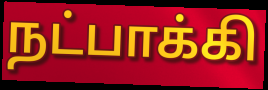
நட்பாக்கி